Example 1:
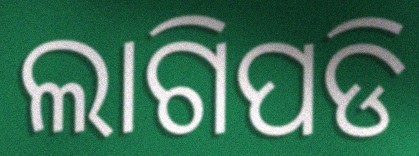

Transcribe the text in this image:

ଲାଗିପଡି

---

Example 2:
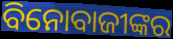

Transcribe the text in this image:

ବିନୋବାଜୀଙ୍କର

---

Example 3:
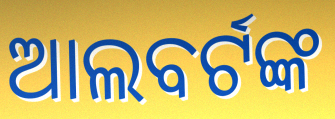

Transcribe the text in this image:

ଆଲବର୍ଟଙ୍କ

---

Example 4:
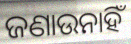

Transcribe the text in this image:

ଜଣାଉନାହିଁ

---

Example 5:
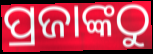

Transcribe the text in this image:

ପ୍ରଜାଙ୍କଠୁ